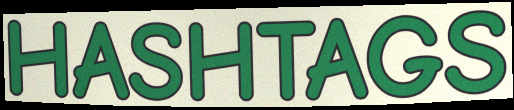
HASHTAGS